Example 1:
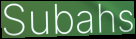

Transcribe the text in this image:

Subahs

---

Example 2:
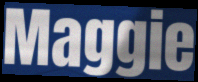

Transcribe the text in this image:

Maggie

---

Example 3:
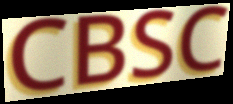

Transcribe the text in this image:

CBSC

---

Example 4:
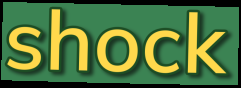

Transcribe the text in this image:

shock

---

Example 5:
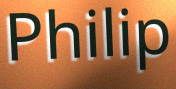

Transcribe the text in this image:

Philip